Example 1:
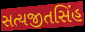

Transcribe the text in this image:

સત્યજીતસિંહ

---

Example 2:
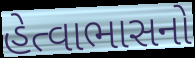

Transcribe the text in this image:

હેત્વાભાસનો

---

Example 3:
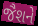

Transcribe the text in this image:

જૈશને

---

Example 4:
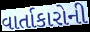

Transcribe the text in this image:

વાર્તાકારોની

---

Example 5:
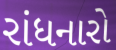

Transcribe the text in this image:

રાંધનારો